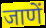
जाणें